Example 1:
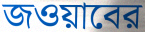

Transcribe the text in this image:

জওয়াবের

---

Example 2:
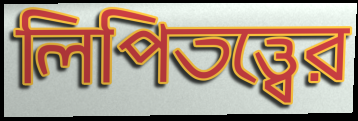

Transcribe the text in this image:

লিপিতত্ত্বের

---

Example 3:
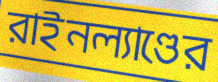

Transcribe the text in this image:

রাইনল্যাণ্ডের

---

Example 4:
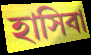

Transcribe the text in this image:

হাসিবা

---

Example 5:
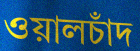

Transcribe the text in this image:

ওয়ালচাঁদ